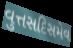
વુત્તસદિસમેવ